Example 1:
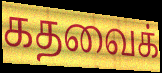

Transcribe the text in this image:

கதவைக்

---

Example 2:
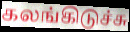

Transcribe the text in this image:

கலங்கிடுச்சு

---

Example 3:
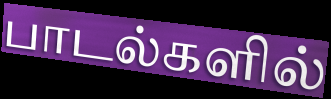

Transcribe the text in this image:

பாடல்களில்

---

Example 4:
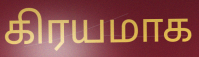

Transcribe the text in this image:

கிரயமாக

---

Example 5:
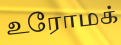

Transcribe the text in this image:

உரோமக்